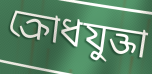
ক্রোধযুক্তা